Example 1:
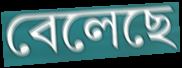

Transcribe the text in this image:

বেলেছে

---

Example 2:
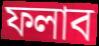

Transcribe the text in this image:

ফলাব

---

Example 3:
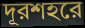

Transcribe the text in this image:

দূরশহরে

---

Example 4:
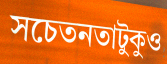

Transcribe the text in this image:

সচেতনতাটুকুও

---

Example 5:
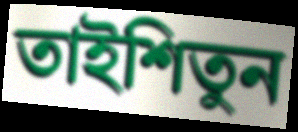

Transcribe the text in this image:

তাইশিতুন